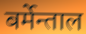
बर्मेन्ताल